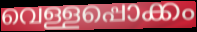
വെള്ളപ്പൊക്കം